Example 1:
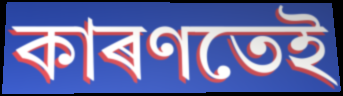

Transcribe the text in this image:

কাৰণতেই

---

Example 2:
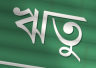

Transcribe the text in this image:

ঋতু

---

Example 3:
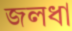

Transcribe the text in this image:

জলধা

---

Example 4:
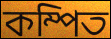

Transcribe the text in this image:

কম্পিত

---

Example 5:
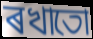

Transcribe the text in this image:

ৰখাতো